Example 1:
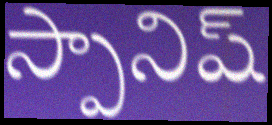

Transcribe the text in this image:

స్పానిష్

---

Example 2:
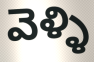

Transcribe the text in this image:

వెళ్ళి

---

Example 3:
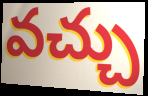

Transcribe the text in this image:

వచ్చు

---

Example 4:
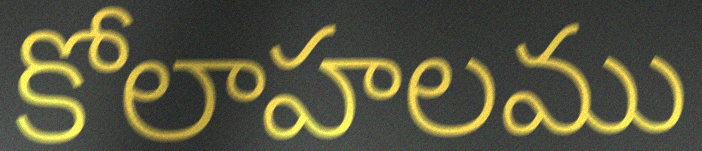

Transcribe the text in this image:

కోలాహలము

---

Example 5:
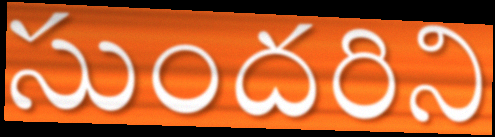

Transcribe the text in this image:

సుందరిని